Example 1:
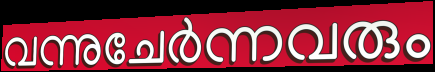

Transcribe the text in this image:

വന്നുചേർന്നവരും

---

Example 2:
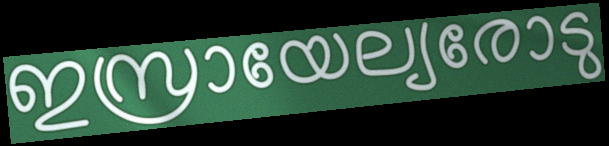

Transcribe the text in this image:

ഇസ്രായേല്യരോടു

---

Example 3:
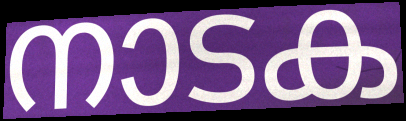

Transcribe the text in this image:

നാടക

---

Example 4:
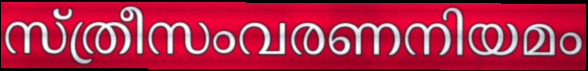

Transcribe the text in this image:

സ്ത്രീസംവരണനിയമം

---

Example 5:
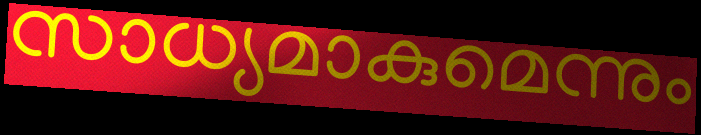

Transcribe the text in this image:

സാധ്യമാകുമെന്നും